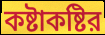
কষ্টাকষ্টির